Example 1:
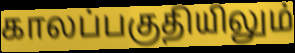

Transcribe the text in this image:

காலப்பகுதியிலும்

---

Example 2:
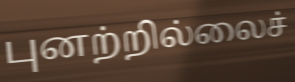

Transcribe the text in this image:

புனற்றில்லைச்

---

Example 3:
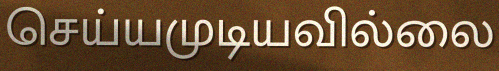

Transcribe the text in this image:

செய்யமுடியவில்லை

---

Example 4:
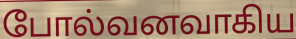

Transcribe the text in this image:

போல்வனவாகிய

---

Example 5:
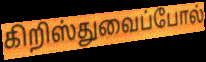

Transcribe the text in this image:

கிறிஸ்துவைப்போல்